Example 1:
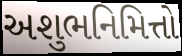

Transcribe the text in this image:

અશુભનિમિત્તો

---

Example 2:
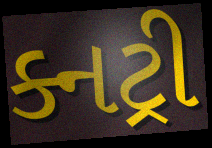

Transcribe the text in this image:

ક્નટ્રી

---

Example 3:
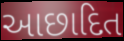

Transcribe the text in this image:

આછાદિત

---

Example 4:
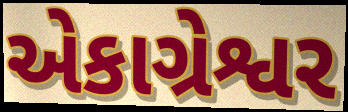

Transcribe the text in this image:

એકાગ્રેશ્વર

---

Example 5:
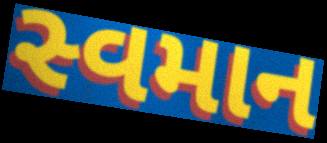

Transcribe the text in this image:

સ્વમાન